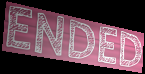
ENDED